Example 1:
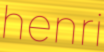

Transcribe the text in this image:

henri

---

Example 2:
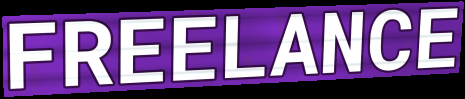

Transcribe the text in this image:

FREELANCE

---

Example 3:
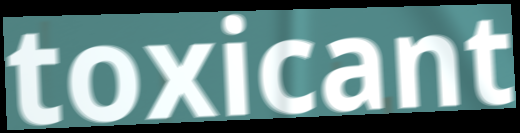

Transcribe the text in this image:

toxicant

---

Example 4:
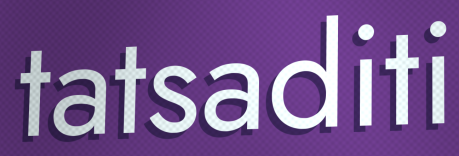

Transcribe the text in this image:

tatsaditi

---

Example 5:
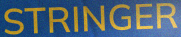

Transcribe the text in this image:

STRINGER